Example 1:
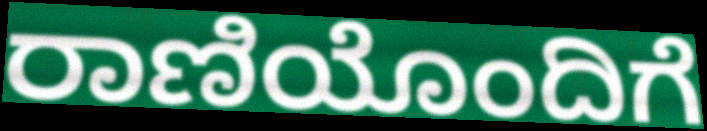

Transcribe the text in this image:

ರಾಣಿಯೊಂದಿಗೆ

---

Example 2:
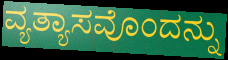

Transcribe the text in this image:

ವ್ಯತ್ಯಾಸವೊಂದನ್ನು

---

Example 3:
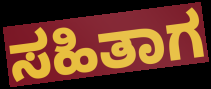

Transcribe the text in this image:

ಸಹಿತಾಗ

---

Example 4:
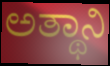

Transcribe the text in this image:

ಅತ್ಥಾನಿ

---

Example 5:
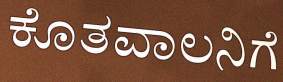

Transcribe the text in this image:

ಕೊತವಾಲನಿಗೆ